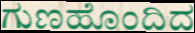
ಗುಣಹೊಂದಿದ